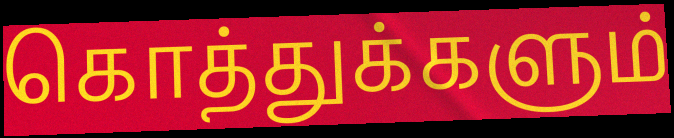
கொத்துக்களும்